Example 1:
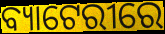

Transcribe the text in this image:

ବ୍ୟାଟେରୀରେ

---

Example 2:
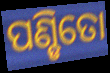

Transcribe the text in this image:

ପଣ୍ଡିତୋ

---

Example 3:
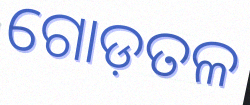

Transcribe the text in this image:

ଗୋଡ଼ତଳ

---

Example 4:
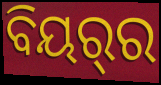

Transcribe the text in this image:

ବିୟର୍‌ର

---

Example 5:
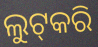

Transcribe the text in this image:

ଲୁଟ୍‌କରି